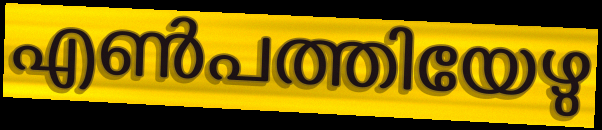
എൺപത്തിയേഴു